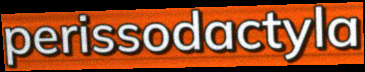
perissodactyla